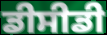
ਡੀਸੀਡੀ